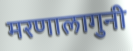
मरणालागुनी